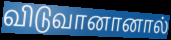
விடுவானானால்